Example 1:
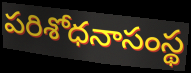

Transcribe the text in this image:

పరిశోధనాసంస్థ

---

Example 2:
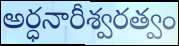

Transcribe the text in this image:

అర్ధనారీశ్వరత్వం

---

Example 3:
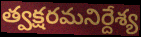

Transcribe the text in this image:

త్వక్షరమనిర్దేశ్య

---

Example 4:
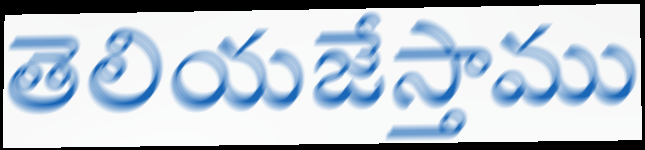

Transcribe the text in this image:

తెలియజేస్తాము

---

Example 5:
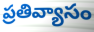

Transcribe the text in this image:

ప్రతివ్యాసం